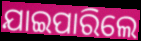
ଯାଇପାରିଲେ